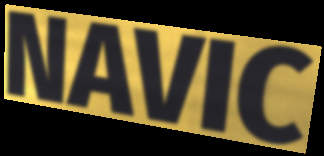
NAVIC